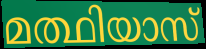
മത്ഥിയാസ്